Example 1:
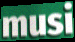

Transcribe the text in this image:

musi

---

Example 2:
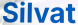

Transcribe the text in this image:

Silvat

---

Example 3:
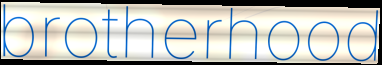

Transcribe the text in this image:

brotherhood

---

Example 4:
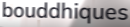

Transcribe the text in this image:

bouddhiques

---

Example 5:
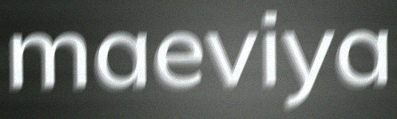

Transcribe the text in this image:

maeviya